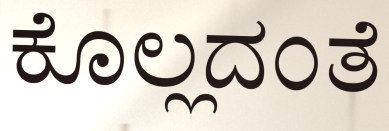
ಕೊಲ್ಲದಂತೆ